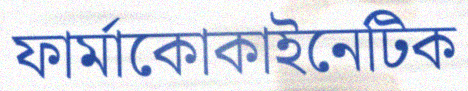
ফার্মাকোকাইনেটিক